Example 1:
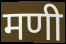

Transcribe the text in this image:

मणी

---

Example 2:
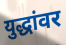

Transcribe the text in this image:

युद्धांवर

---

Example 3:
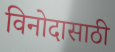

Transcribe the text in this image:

विनोदासाठी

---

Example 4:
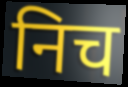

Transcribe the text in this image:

निच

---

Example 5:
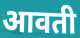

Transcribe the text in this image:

आवती